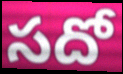
సదో